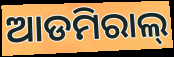
ଆଡମିରାଲ୍